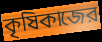
কৃষিকাজের